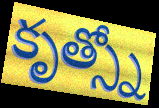
కృత్స్నో